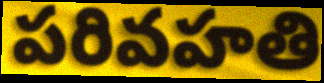
పరివహతి